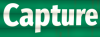
Capture